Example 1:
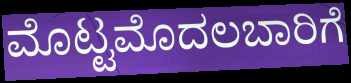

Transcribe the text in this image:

ಮೊಟ್ಟಮೊದಲಬಾರಿಗೆ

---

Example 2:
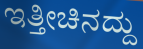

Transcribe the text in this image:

ಇತ್ತೀಚಿನದ್ದು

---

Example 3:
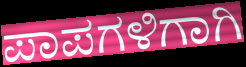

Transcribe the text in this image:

ಪಾಪಗಳಿಗಾಗಿ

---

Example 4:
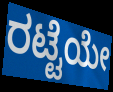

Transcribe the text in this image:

ರಟ್ಟೆಯೇ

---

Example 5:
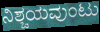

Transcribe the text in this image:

ನಿಶ್ಚಯವುಂಟು